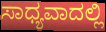
ಸಾಧ್ಯವಾದಲ್ಲಿ